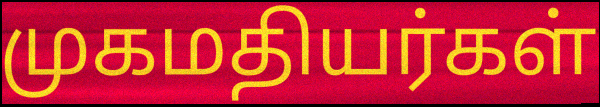
முகமதியர்கள்